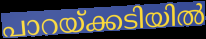
പാറയ്ക്കടിയിൽ